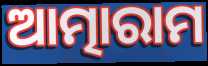
ଆତ୍ମାରାମ